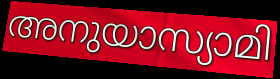
അനുയാസ്യാമി